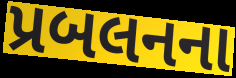
પ્રબલનના